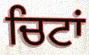
ਚਿਟਾਂ